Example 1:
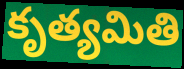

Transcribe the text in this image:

కృత్యమితి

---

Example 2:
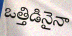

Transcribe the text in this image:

ఒత్తిడినైనా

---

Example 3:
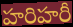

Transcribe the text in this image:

హరిహరీ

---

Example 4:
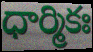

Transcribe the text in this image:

ధార్మికః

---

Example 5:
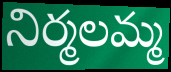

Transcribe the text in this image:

నిర్మలమ్మ